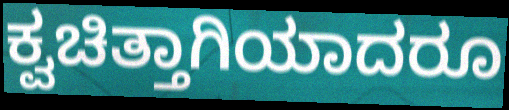
ಕ್ವಚಿತ್ತಾಗಿಯಾದರೂ